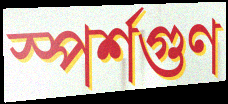
স্পর্শগুণ